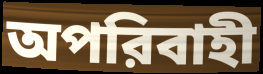
অপরিবাহী